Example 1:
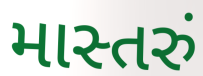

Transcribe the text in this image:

માસ્તરું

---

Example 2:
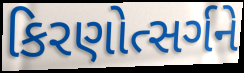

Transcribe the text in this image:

કિરણોત્સર્ગને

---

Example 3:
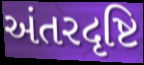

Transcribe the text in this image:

અંતરદૃષ્ટિ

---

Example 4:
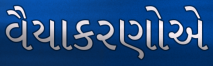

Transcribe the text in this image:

વૈયાકરણોએ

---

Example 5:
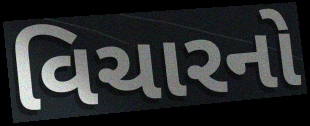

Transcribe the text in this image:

વિચારનો